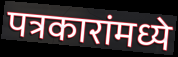
पत्रकारांमध्ये